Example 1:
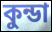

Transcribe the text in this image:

কুন্ডা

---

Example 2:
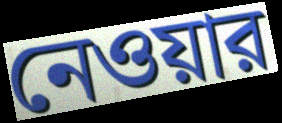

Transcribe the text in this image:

নেওয়ার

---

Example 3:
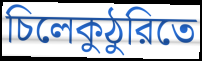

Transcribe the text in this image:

চিলেকুঠুরিতে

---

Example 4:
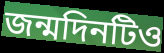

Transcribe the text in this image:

জন্মদিনটিও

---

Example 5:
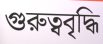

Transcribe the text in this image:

গুরুত্ববৃদ্ধি